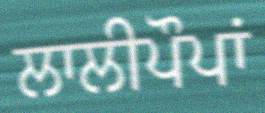
ਲਾਲੀਪੌਪਾਂ